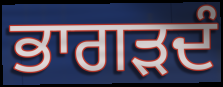
ਭਾਗੜਦੰ